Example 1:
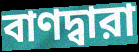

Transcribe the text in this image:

বাণদ্বারা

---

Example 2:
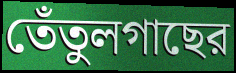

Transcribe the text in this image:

তেঁতুলগাছের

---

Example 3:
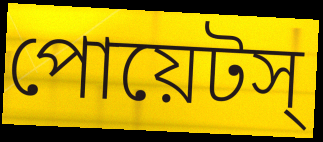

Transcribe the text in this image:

পোয়েটস্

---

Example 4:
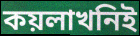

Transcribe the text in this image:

কয়লাখনিই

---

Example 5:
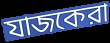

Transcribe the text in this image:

যাজকেরা